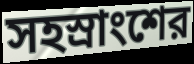
সহস্রাংশের